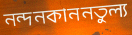
নন্দনকাননতুল্য